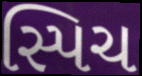
સ્પિચ